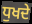
ਧੁਖਦੇ